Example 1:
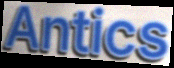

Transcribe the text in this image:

Antics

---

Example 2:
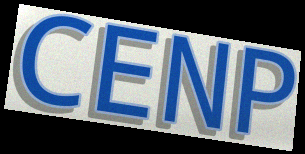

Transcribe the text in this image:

CENP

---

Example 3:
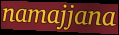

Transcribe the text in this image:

namajjana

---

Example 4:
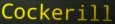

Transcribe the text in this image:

Cockerill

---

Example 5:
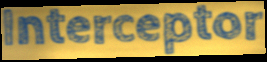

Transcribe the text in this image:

Interceptor